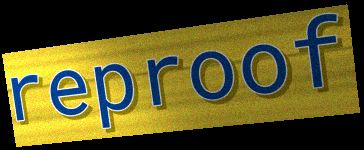
reproof